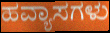
ಹವ್ಯಾಸಗಳು